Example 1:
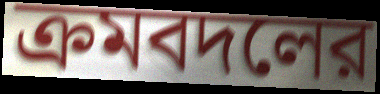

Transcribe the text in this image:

ক্রমবদলের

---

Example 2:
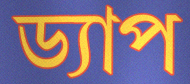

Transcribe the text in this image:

ড্যাপ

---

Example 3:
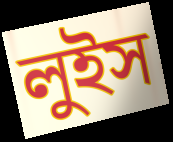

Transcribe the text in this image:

লুইস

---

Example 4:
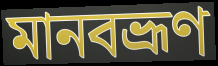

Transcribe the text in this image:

মানবভ্রূণ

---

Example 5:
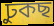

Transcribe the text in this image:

ঢুকছ